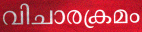
വിചാരക്രമം